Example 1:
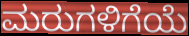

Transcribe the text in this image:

ಮರುಗಳಿಗೆಯೆ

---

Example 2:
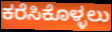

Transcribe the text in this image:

ಕರೆಸಿಕೊಳ್ಳಲು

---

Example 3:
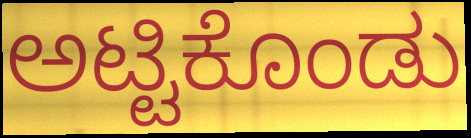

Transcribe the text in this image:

ಅಟ್ಟಿಕೊಂಡು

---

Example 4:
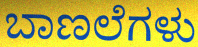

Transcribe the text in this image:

ಬಾಣಲೆಗಳು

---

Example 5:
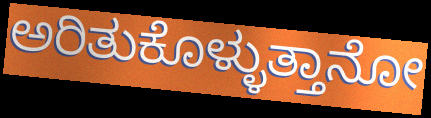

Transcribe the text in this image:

ಅರಿತುಕೊಳ್ಳುತ್ತಾನೋ